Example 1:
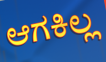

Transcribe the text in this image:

ಆಗಕಿಲ್ಲ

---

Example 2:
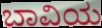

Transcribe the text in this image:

ಬಾವಿಯ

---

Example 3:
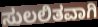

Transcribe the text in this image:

ಸುಲಲಿತವಾಗಿ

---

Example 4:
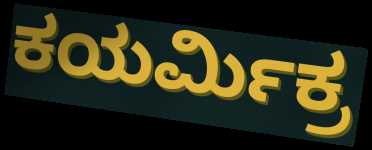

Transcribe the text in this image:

ಕಯರ್ಮಿಕ್ರ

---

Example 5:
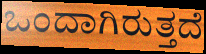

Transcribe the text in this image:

ಒಂದಾಗಿರುತ್ತದೆ